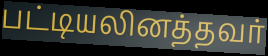
பட்டியலினத்தவர்